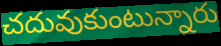
చదువుకుంటున్నారు